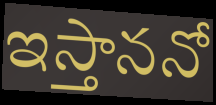
ఇస్తాననో